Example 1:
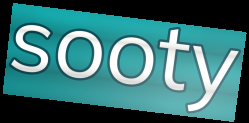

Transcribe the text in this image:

sooty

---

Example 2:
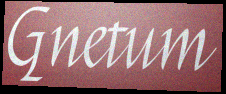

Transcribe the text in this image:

Gnetum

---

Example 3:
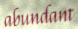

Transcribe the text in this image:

abundant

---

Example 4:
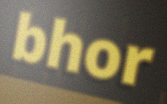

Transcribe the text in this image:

bhor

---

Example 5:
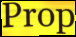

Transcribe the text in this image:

Prop